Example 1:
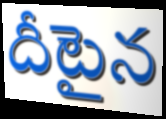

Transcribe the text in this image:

దీటైన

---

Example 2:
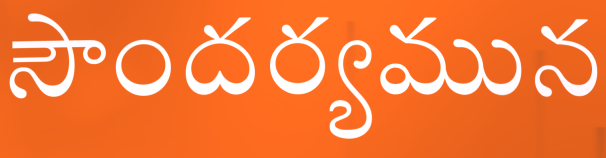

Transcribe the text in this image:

సౌందర్యమున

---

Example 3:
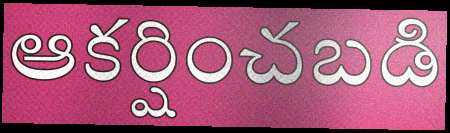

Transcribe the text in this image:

ఆకర్షించబడి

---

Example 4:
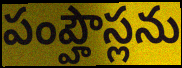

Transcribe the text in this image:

పంప్హౌస్లను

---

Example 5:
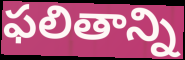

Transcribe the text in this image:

ఫలితాన్ని